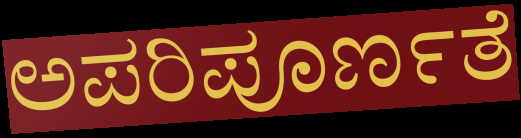
ಅಪರಿಪೂರ್ಣತೆ